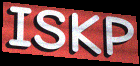
ISKP